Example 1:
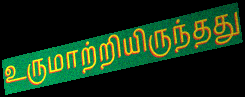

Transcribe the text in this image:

உருமாற்றியிருந்தது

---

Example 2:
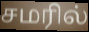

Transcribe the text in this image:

சமரில்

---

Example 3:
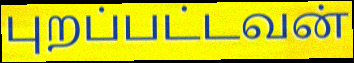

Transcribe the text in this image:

புறப்பட்டவன்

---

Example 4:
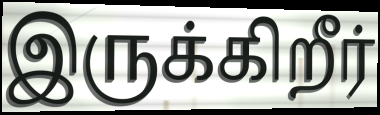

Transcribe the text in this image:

இருக்கிறீர்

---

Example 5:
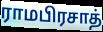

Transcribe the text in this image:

ராமபிரசாத்